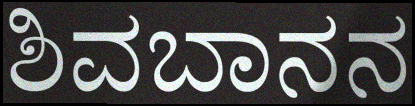
ಶಿವಬಾನನ